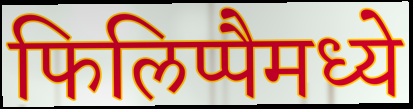
फिलिप्पैमध्ये